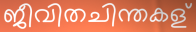
ജീവിതചിന്തകള്